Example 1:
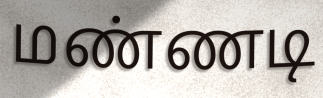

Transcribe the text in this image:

மண்ணடி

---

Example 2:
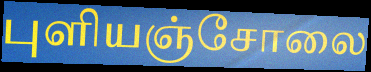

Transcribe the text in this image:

புளியஞ்சோலை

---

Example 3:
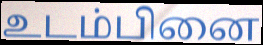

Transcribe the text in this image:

உடம்பினை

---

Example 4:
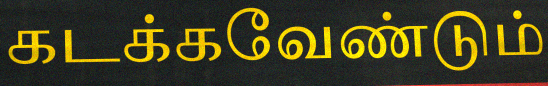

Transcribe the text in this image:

கடக்கவேண்டும்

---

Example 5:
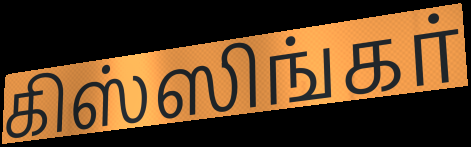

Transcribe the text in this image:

கிஸ்ஸிங்கர்